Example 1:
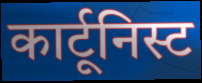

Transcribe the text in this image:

कार्टूनिस्ट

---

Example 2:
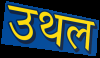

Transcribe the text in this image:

उथल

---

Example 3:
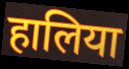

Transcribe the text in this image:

हालिया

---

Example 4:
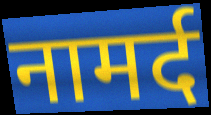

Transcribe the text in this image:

नामर्द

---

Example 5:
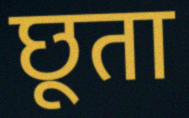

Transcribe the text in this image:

छूता